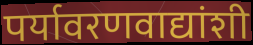
पर्यावरणवाद्यांशी